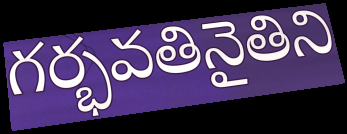
గర్భవతినైతిని